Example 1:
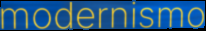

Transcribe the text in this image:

modernismo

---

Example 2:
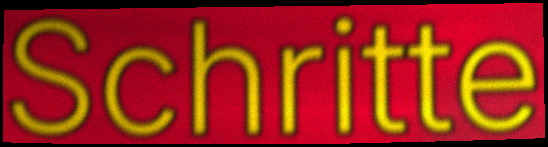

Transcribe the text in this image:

Schritte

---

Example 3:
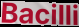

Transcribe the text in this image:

Bacilli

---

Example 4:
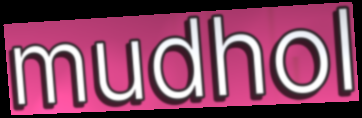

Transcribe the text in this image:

mudhol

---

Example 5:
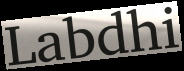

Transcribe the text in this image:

Labdhi